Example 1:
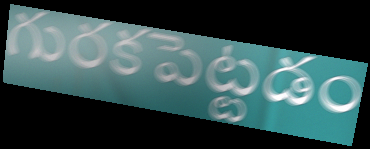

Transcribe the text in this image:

గురకపెట్టడం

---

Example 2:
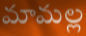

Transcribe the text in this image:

మామల్ల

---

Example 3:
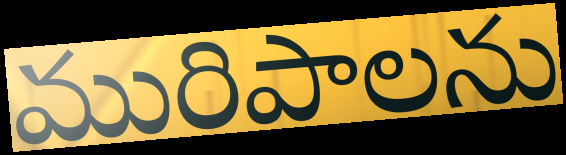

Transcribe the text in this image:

మురిపాలను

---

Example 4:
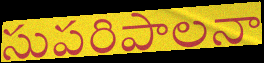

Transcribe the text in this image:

సుపరిపాలనా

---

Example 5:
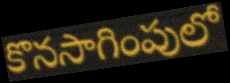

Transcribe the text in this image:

కొనసాగింపులో